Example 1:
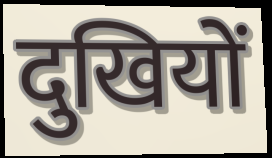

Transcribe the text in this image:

दुखियों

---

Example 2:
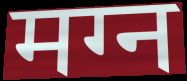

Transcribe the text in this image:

मग्‍न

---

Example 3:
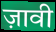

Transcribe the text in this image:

ज़ावी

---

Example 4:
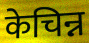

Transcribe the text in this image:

केचिन्न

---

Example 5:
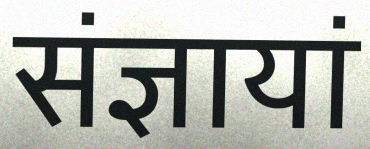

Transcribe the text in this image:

संज्ञायां